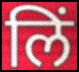
लिं